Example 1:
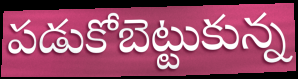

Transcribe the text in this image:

పడుకోబెట్టుకున్న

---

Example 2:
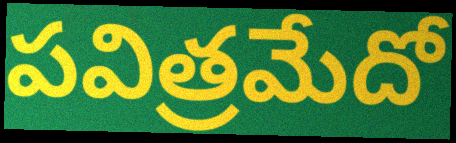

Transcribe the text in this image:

పవిత్రమేదో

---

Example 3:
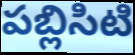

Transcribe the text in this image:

పబ్లిసిటి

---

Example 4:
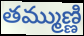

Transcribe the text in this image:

తమ్ముణ్ణి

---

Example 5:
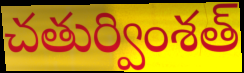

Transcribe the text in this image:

చతుర్వింశత్